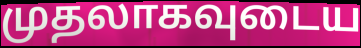
முதலாகவுடைய